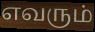
எவரும்